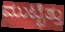
ಮುಟ್ಟಿತ್ತು